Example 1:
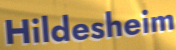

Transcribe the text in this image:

Hildesheim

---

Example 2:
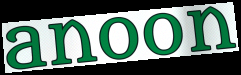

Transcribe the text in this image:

anoon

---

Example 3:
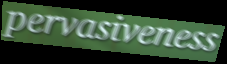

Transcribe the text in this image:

pervasiveness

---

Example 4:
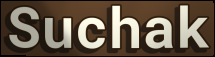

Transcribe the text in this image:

Suchak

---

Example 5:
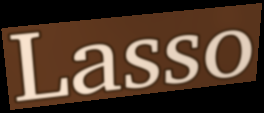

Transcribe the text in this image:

Lasso